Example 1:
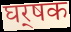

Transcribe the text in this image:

घर्षक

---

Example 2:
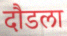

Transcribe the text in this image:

दौडला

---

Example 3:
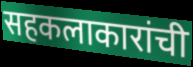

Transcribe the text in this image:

सहकलाकारांची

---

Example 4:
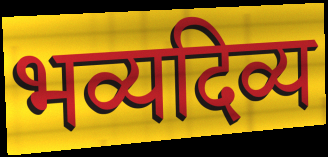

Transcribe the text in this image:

भव्यदिव्य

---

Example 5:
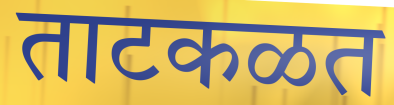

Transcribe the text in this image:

ताटकळत